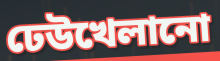
ঢেউখেলানো